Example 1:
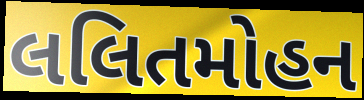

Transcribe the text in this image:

લલિતમોહન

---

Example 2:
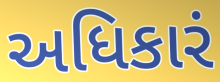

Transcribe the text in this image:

અધિકારં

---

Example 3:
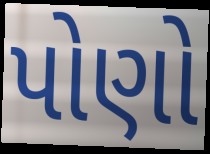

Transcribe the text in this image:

પોણો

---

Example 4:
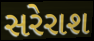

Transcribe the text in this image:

સરેરાશ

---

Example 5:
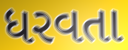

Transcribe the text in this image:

ધરવતા